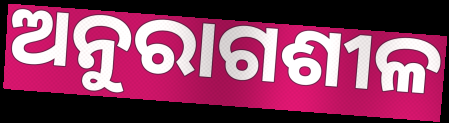
ଅନୁରାଗଶୀଳ